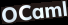
OCaml